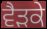
ਵੈੜਕੇ